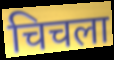
चिचला